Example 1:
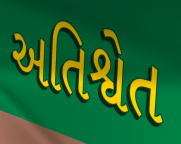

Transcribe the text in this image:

અતિશ્વેત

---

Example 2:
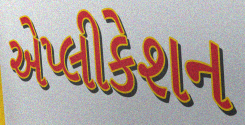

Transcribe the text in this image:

એપ્લીકેશન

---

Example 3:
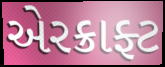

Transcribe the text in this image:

એરક્રાફ્ટ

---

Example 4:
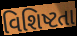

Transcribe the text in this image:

વિશિષ્ટતા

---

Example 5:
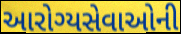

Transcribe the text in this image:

આરોગ્યસેવાઓની